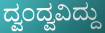
ದ್ವಂದ್ವವಿದ್ದು